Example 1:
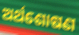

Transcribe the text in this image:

ଅର୍ଥଶୋଷଣ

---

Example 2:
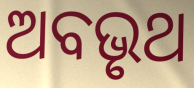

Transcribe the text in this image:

ଅବଭୃଥ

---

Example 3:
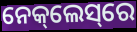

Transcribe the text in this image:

ନେକ୍‌ଲେସ୍‌ରେ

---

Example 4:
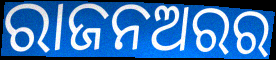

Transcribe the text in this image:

ରାଜନଅରର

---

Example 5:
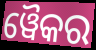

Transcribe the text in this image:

ୱୈକର